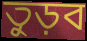
তুড়ব